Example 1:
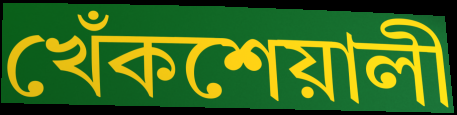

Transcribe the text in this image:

খেঁকশেয়ালী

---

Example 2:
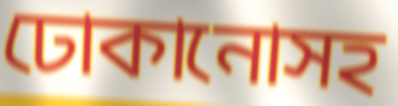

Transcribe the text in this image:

ঢোকানোসহ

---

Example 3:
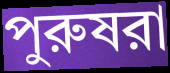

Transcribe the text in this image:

পুরুষরা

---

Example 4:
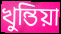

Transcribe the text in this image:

খুন্তিয়া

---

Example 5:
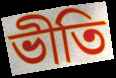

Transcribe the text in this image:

ভীতি